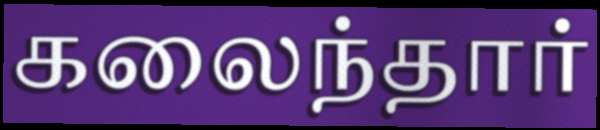
கலைந்தார்